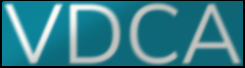
VDCA